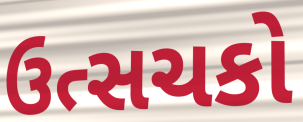
ઉત્સચકો